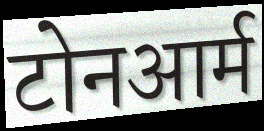
टोनआर्म